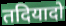
तदियादो